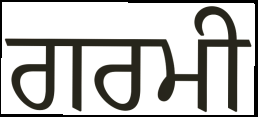
ਗਰਮੀ